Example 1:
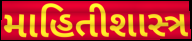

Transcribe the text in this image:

માહિતીશાસ્ત્ર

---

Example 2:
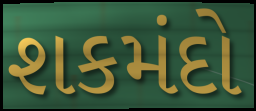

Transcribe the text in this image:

શકમંદો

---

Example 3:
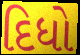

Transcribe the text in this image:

દિધો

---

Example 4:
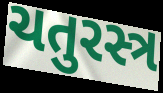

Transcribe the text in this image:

ચતુરસ્ત્ર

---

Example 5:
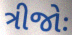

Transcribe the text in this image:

ત્રીજોઃ